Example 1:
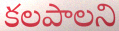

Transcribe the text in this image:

కలపాలని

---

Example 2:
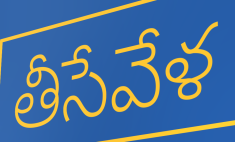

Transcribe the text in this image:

తీసేవేళ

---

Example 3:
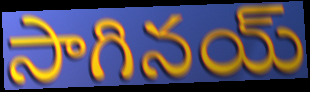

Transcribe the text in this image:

సాగినయ్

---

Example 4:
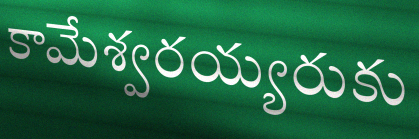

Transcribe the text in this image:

కామేశ్వరయ్యరుకు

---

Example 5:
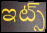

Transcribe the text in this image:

ఇట్స్